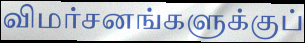
விமர்சனங்களுக்குப்